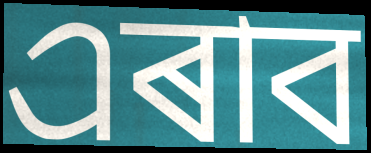
এৰাব